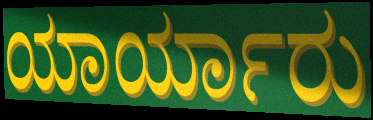
ಯಾರ್ಯಾರು